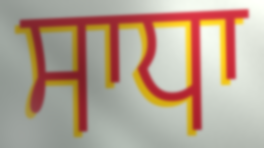
ਸਾਧਾ